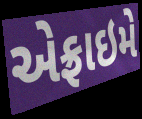
એફ્રાઇમે